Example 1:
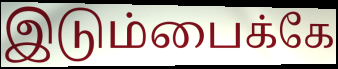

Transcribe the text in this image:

இடும்பைக்கே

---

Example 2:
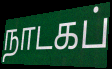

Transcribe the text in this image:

நாடகப்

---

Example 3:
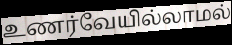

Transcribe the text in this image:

உணர்வேயில்லாமல்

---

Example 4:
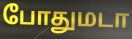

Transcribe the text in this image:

போதுமடா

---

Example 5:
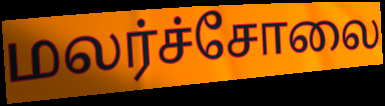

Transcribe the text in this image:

மலர்ச்சோலை